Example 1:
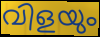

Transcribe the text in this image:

വിളയും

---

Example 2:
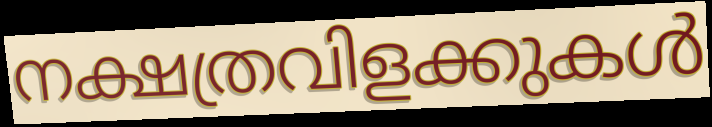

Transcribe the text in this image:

നക്ഷത്രവിളക്കുകൾ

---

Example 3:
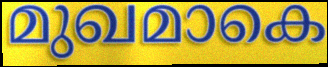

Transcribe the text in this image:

മുഖമാകെ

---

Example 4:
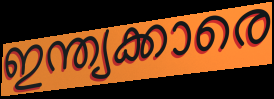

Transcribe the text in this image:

ഇന്ത്യക്കാരെ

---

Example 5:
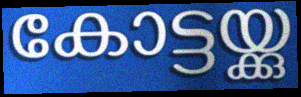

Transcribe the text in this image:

കോട്ടയ്ക്കു